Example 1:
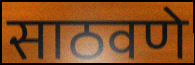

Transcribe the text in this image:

साठवणे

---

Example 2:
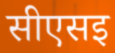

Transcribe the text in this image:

सीएसइ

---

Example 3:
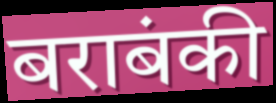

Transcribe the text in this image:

बराबंकी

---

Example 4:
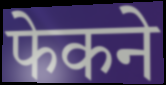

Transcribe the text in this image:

फेकने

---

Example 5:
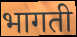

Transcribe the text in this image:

भागती